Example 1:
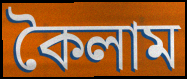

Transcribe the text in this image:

কৈলাম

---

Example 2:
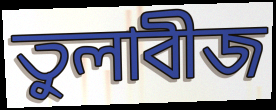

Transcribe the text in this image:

তুলাবীজ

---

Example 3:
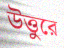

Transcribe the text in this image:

উত্তুরে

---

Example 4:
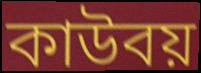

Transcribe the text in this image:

কাউবয়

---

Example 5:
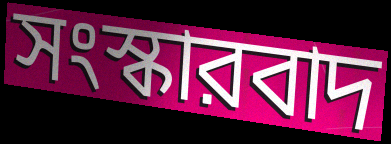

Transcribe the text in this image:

সংস্কারবাদ